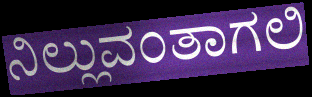
ನಿಲ್ಲುವಂತಾಗಲಿ